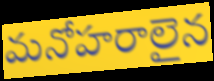
మనోహరాలైన